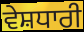
ਵੇਸ਼ਧਾਰੀ